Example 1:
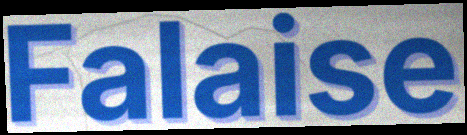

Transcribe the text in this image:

Falaise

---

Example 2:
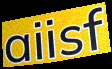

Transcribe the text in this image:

aiisf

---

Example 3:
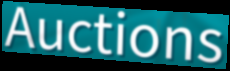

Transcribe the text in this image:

Auctions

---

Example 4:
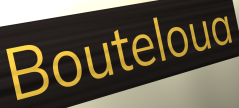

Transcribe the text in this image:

Bouteloua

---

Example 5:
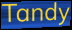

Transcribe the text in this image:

Tandy